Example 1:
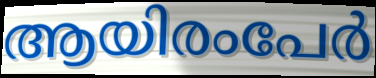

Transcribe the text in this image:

ആയിരംപേർ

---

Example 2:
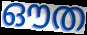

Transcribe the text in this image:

ഔത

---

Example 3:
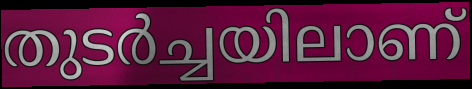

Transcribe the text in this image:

തുടർച്ചയിലാണ്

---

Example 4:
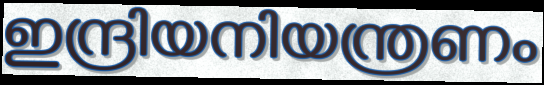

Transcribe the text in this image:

ഇന്ദ്രിയനിയന്ത്രണം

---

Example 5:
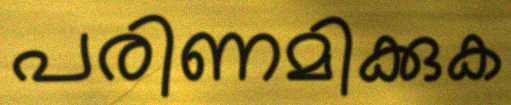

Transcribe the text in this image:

പരിണമിക്കുക